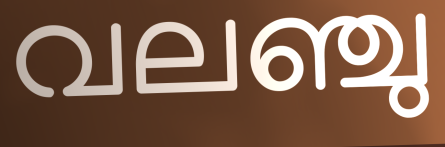
വലഞ്ചു